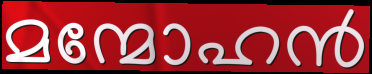
മന്മോഹൻ